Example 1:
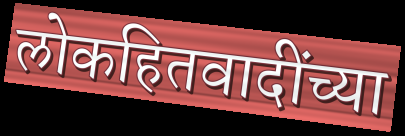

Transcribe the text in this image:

लोकहितवादींच्या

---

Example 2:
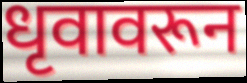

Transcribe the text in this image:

धृवावरून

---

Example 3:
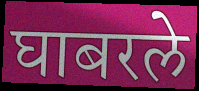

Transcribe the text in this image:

घाबरले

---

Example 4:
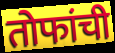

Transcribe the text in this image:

तोफांची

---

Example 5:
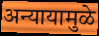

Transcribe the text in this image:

अन्यायामुळे